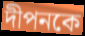
দীপনকে